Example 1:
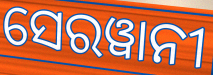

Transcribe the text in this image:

ସେରୱାନୀ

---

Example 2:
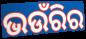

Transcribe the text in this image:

ଭଉଁରିର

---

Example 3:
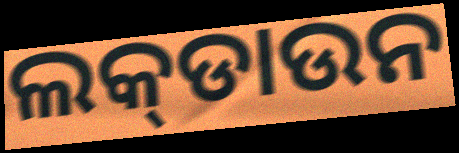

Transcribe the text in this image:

ଲକ୍‍ଡାଉନ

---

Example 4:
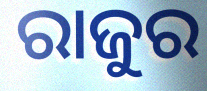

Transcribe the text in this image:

ରାଜୁର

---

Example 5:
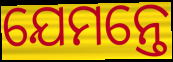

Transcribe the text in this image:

ଯେମନ୍ତେ